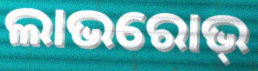
ଲାଭରୋଭ୍